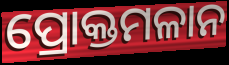
ପ୍ରୋକ୍ତମଳାନ